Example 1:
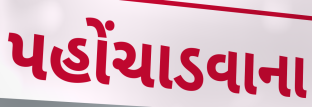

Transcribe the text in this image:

પહોંચાડવાના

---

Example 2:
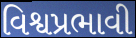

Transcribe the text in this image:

વિશ્વપ્રભાવી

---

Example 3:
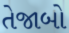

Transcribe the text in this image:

તેજાબો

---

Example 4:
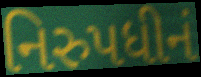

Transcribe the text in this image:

નિરુપધીનં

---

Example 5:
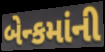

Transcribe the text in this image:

બેન્કમાંની